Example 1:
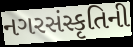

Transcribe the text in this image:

નગરસંસ્કૃતિની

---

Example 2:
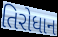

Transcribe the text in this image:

તિરોધાન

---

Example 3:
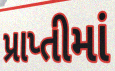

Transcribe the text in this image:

પ્રાપ્તીમાં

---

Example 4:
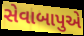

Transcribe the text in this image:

સેવાબાપુએ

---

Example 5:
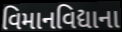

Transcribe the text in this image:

વિમાનવિદ્યાના